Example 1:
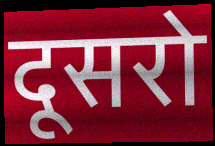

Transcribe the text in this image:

दूसरो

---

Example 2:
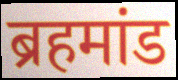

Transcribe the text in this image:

ब्रहमांड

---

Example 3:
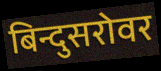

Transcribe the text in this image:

बिन्दुसरोवर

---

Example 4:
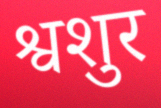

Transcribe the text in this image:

श्वशुर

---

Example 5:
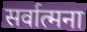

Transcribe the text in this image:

सर्वात्मना